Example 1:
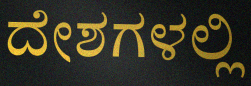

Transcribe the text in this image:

ದೇಶಗಳಲ್ಲಿ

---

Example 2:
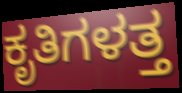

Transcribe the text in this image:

ಕೃತಿಗಳತ್ತ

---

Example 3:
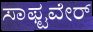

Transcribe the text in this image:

ಸಾಫ್ಟವೇರ್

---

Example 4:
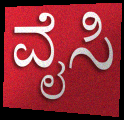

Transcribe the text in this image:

ವೈಸಿ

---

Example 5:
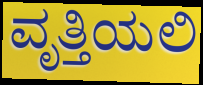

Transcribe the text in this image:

ವೃತ್ತಿಯಲಿ